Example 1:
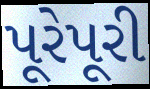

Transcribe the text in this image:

પૂરેપૂરી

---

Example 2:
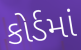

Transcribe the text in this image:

કોર્ડમાં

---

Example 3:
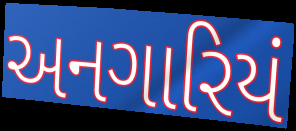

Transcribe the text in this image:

અનગારિયં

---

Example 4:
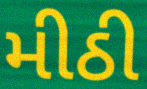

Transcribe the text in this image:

મીઠી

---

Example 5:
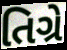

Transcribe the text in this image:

તિગ્રે